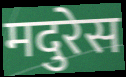
मदुरेस